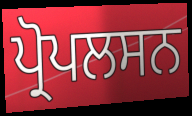
ਪ੍ਰੋਪਲਸਨ